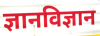
ज्ञानविज्ञान